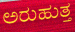
ಅರುಹುತ್ತ